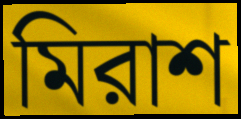
মিরাশ